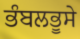
ਭੰਬਲਭੂਸੇ